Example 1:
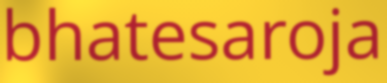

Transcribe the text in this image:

bhatesaroja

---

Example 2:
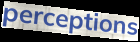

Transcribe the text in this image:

perceptions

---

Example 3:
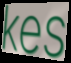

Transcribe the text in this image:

kes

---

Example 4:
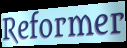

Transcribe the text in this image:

Reformer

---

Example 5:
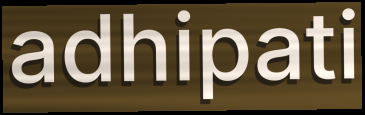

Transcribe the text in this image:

adhipati